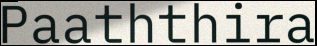
Paaththira